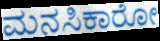
ಮನಸಿಕಾರೋ